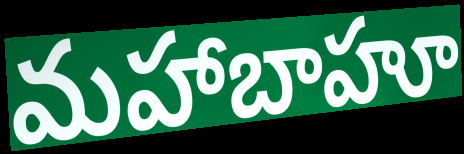
మహాబాహూ